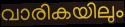
വാരികയിലും